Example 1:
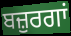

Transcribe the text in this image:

ਬਜ਼ੁਰਗਾਂ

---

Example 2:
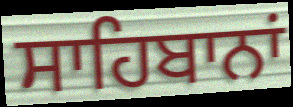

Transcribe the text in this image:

ਸਾਹਿਬਾਨਾਂ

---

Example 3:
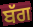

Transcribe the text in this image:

ਬੱਗ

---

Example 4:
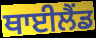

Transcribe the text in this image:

ਥਾਈਲੈਂਡ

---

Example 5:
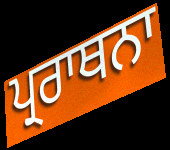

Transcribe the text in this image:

ਪ੍ਰਰਾਥਨਾ